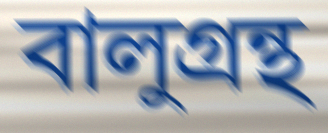
বালুগ্রন্থ